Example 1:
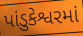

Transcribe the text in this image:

પાંડુકેશ્વરમાં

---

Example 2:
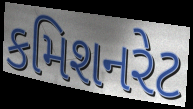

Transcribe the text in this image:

કમિશનરેટ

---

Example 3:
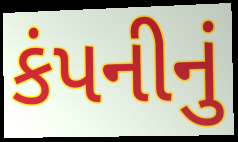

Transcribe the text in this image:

કંપનીનું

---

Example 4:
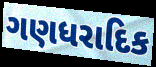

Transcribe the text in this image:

ગણધરાદિક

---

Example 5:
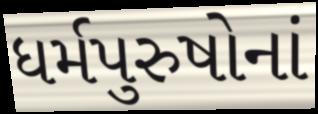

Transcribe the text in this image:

ધર્મપુરુષોનાં